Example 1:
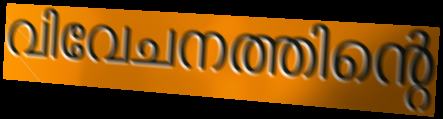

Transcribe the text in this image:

വിവേചനത്തിന്റെ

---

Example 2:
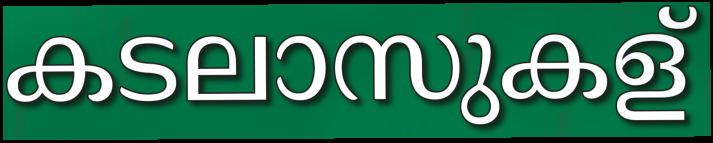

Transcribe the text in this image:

കടലാസുകള്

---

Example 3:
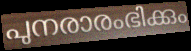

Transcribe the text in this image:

പുനരാരംഭിക്കും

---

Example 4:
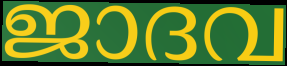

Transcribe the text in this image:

ജാദവ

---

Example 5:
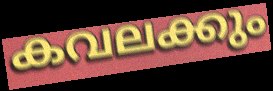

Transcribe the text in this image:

കവലക്കും